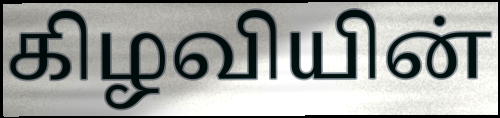
கிழவியின்